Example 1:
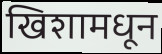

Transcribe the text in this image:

खिशामधून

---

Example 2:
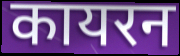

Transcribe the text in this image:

कायरन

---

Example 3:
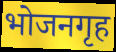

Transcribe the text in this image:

भोजनगृह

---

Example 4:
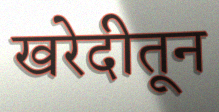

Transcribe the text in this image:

खरेदीतून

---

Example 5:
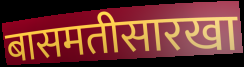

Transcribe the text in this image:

बासमतीसारखा